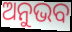
ଅନୁଭବ